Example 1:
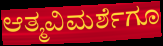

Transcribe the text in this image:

ಆತ್ಮವಿಮರ್ಶೆಗೂ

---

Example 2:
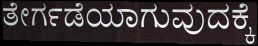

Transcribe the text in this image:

ತೇರ್ಗಡೆಯಾಗುವುದಕ್ಕೆ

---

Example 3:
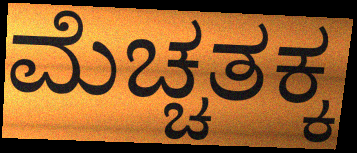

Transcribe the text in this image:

ಮೆಚ್ಚತಕ್ಕ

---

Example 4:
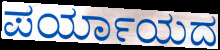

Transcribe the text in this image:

ಪರ್ಯಾಯದ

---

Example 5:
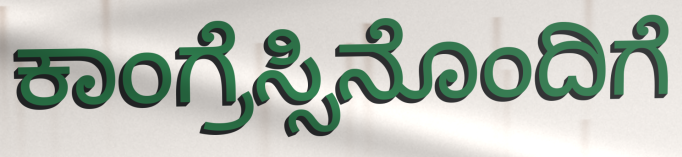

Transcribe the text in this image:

ಕಾಂಗ್ರೆಸ್ಸಿನೊಂದಿಗೆ